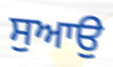
ਸੁਆਉ